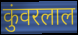
कुंवरलाल